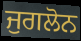
ਜੁਗਲੋਨ